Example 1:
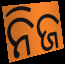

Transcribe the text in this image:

ନିଜ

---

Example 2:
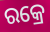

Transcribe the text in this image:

ରକ୍ରେ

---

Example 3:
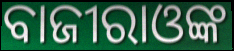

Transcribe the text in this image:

ବାଜୀରାଓଙ୍କ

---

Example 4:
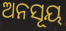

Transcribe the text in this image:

ଅନସୂୟ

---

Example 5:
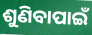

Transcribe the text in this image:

ଶୁଣିବାପାଇଁ